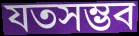
যতসম্ভব